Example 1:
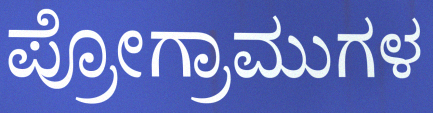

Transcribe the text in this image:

ಪ್ರೋಗ್ರಾಮುಗಳ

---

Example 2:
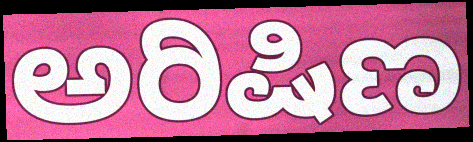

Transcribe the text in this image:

ಅರಿಷಿಣ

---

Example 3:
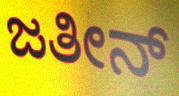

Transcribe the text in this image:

ಜತೀನ್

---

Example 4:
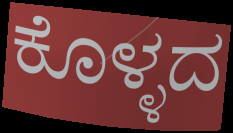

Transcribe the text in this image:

ಕೊಳ್ಳದ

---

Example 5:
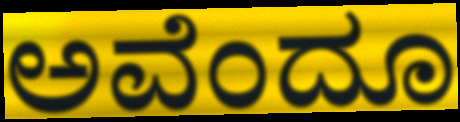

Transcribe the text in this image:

ಅವೆಂದೂ